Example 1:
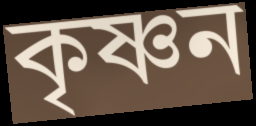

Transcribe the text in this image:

কৃষ্ণন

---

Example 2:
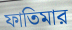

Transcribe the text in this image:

ফাতিমার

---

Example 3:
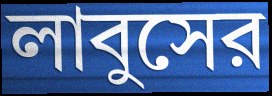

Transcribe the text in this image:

লাবুসের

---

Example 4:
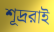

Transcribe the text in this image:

শূদ্ররাই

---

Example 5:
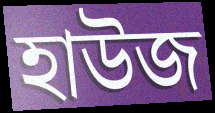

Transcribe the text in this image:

হাউজ